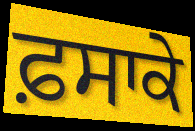
ਫ਼ਸਾਕੇ